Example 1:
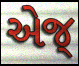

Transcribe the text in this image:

એજ્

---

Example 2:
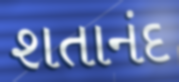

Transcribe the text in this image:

શતાનંદ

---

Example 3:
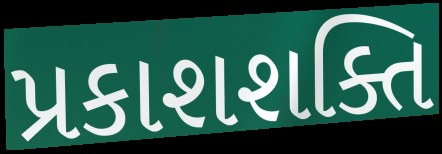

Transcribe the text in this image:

પ્રકાશશક્તિ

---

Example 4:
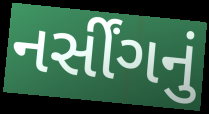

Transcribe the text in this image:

નર્સીંગનું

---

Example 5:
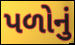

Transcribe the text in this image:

પળોનું